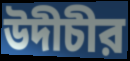
উদীচীর